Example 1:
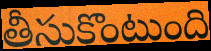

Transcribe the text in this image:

తీసుకొంటుంది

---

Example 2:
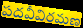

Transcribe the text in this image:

పదవీవిరమణ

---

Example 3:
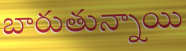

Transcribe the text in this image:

బారుతున్నాయి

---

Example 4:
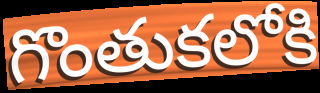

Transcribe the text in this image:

గొంతుకలోకి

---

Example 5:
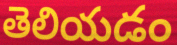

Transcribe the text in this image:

తెలియడం